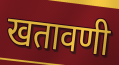
खतावणी